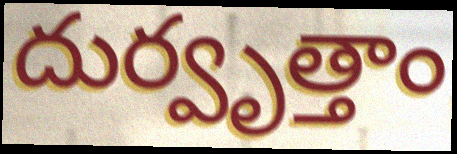
దుర్వృత్తాం